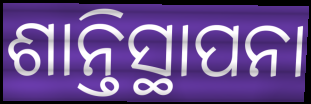
ଶାନ୍ତିସ୍ଥାପନା